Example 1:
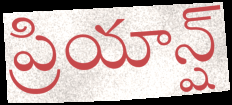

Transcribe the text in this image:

ప్రియాన్ష్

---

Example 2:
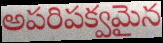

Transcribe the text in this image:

అపరిపక్వమైన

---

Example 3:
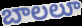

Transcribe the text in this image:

బాలలూ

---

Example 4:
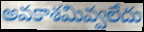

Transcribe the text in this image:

అవకాశమివ్వలేదు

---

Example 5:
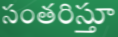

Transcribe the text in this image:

సంతరిస్తూ